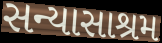
સન્યાસાશ્રમ